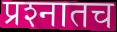
प्रश्नातच